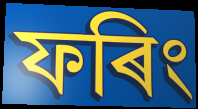
ফৰিং